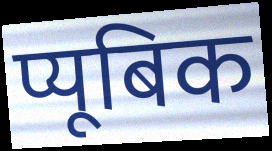
प्यूबिक